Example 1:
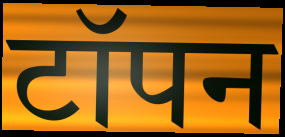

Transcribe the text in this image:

टॉपन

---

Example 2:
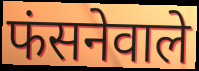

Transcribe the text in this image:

फंसनेवाले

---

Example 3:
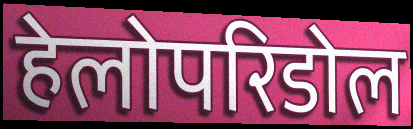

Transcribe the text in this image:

हेलोपरिडोल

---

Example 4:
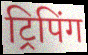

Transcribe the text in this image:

ट्रिपिंग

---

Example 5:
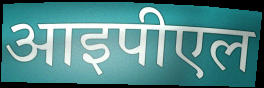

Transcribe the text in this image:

आइपीएल